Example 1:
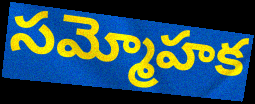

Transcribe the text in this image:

సమ్మోహక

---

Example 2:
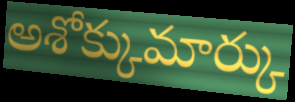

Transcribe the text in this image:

అశోక్కుమార్కు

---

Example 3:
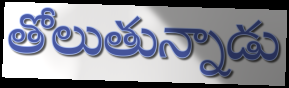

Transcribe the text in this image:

తోలుతున్నాడు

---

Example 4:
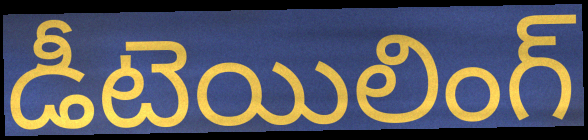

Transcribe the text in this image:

డీటెయిలింగ్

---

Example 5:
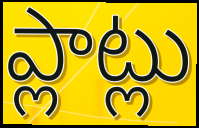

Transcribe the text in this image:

ప్లాట్లు